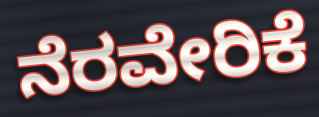
ನೆರವೇರಿಕೆ